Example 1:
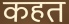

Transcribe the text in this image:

कहत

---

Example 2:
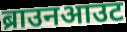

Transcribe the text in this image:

ब्राउनआउट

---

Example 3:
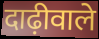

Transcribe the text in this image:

दाढ़ीवाले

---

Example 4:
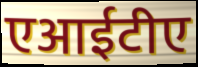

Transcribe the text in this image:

एआईटीए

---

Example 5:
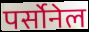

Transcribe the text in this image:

पर्सोनेल